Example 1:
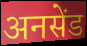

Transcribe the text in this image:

अनसेंड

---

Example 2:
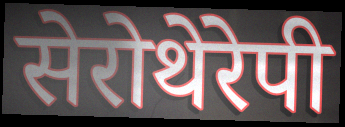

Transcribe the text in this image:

सेरोथेरेपी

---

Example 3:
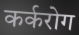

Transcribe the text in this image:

कर्करोग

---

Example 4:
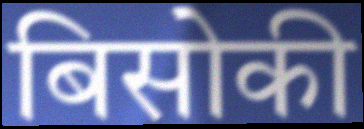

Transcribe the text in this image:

बिसोकी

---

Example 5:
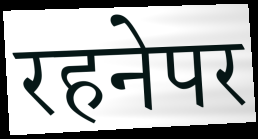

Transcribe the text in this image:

रहनेपर